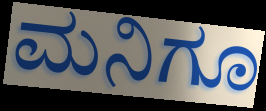
ಮನಿಗೂ